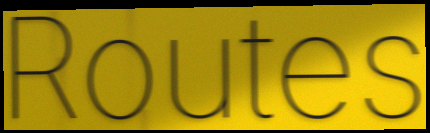
Routes